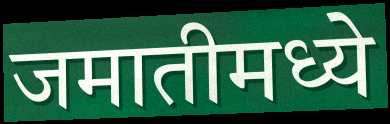
जमातीमध्ये